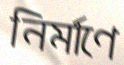
নিৰ্মাণে